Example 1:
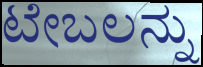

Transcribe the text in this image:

ಟೇಬಲನ್ನು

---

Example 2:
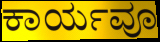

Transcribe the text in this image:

ಕಾರ್ಯವೂ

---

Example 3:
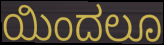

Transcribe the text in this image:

ಯಿಂದಲೂ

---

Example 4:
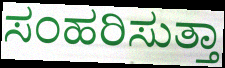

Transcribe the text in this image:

ಸಂಹರಿಸುತ್ತಾ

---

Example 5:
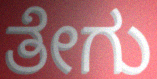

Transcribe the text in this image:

ತೇಗು